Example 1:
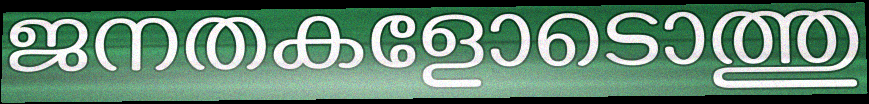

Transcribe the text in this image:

ജനതകളോടൊത്തു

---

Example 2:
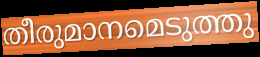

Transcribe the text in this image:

തീരുമാനമെടുത്തു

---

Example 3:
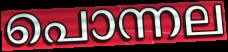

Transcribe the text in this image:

പൊന്നല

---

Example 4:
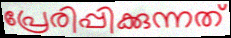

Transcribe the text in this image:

പ്രേരിപ്പിക്കുന്നത്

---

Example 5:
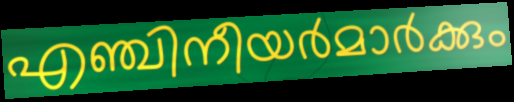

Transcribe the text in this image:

എഞ്ചിനീയർമാർക്കും